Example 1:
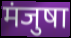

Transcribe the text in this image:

मंजुषा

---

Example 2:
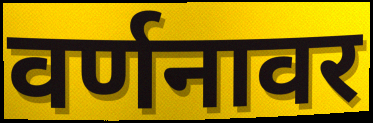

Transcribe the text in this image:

वर्णनावर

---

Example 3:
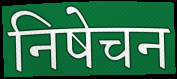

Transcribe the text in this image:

निषेचन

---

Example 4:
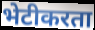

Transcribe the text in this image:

भेटीकरता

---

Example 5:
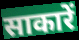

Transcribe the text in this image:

साकारें